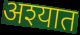
अश्यात